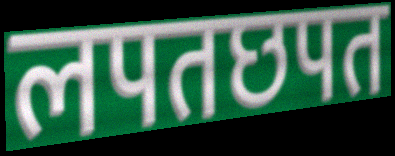
लपतछपत